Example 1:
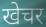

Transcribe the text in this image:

खेचर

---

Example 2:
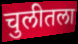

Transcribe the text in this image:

चुलीतला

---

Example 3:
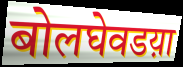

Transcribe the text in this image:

बोलघेवडय़ा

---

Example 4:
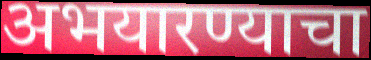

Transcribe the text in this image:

अभयारण्याचा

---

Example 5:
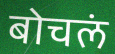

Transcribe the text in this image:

बोचलं